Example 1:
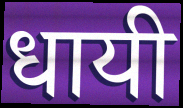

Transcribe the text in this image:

धायी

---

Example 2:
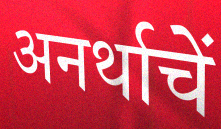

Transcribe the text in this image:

अनर्थाचें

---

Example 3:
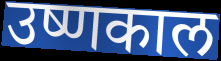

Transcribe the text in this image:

उष्णकाल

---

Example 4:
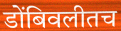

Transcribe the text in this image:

डोंबिवलीतच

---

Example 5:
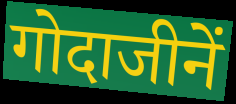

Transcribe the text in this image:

गोदाजीनें